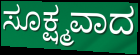
ಸೂಕ್ಷ್ಮವಾದ